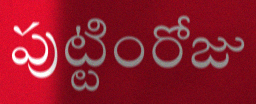
పుట్టింరోజు